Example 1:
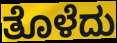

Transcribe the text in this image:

ತೊಳೆದು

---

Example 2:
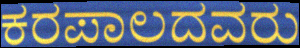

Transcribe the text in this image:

ಕರಪಾಲದವರು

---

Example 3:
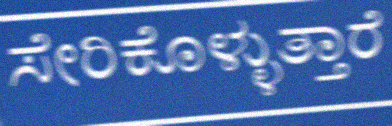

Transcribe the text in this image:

ಸೇರಿಕೊಳ್ಳುತ್ತಾರೆ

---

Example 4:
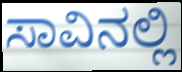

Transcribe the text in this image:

ಸಾವಿನಲ್ಲಿ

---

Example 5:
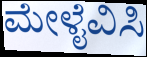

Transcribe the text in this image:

ಮೇಳೈವಿಸಿ